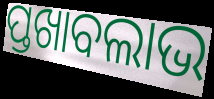
ପ୍ତଖାବଲାଭ